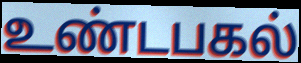
உண்டபகல்